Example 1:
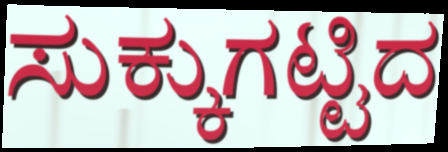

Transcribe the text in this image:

ಸುಕ್ಕುಗಟ್ಟಿದ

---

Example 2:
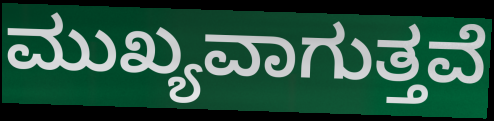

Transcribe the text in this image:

ಮುಖ್ಯವಾಗುತ್ತವೆ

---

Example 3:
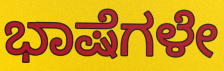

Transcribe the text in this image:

ಭಾಷೆಗಳೇ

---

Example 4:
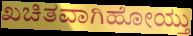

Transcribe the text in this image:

ಖಚಿತವಾಗಿಹೋಯ್ತು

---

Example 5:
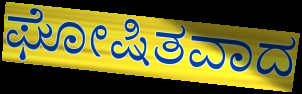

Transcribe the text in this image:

ಘೋಷಿತವಾದ